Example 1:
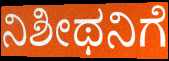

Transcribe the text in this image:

ನಿಶೀಥನಿಗೆ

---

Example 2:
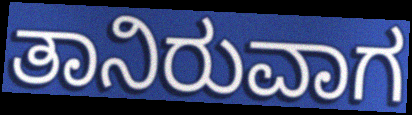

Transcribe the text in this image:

ತಾನಿರುವಾಗ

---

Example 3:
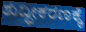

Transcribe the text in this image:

ಶುದ್ಧೀಕರಣಕ್ಕೆ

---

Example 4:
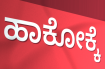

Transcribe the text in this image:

ಹಾಕೋಕ್ಕೆ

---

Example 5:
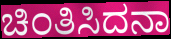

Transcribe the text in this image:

ಚಿಂತಿಸಿದನಾ